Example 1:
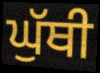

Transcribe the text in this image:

ਘੁੱਥੀ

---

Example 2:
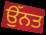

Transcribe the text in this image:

ਉੱਨਤ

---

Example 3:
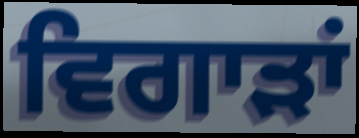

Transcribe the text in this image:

ਵਿਗਾੜਾਂ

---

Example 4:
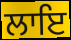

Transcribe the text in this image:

ਲਾਇ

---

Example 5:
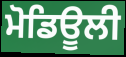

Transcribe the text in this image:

ਮੋਡਿਊਲੀ